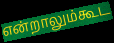
என்றாலும்கூட